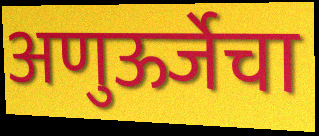
अणुऊर्जेचा